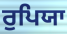
ਰੁਪਿਯਾ